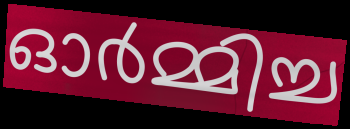
ഓർമ്മിച്ച